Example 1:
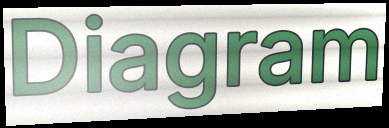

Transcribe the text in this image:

Diagram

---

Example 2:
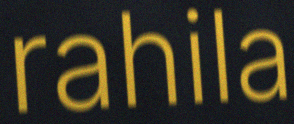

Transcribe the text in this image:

rahila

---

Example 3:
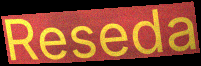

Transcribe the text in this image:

Reseda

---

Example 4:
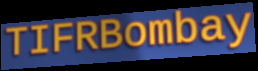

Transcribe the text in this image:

TIFRBombay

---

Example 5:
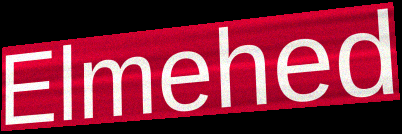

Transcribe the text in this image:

Elmehed